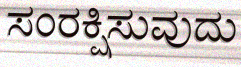
ಸಂರಕ್ಷಿಸುವುದು